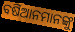
ବର୍ଷିଆନମାନଙ୍କୁ